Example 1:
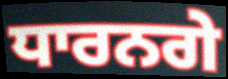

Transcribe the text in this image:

ਧਾਰਨਗੇ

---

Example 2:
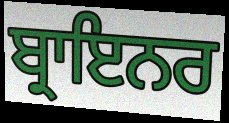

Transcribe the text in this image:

ਬ੍ਰਾਇਨਰ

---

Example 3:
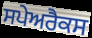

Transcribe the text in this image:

ਸਪੇਅਰੈਕਸ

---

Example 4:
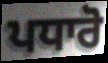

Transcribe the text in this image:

ਪਧਾਰੋ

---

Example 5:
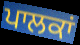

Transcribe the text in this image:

ਪਾਲਕਾਂ